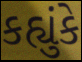
કહ્યુંકે